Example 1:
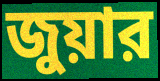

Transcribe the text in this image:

জুয়ার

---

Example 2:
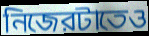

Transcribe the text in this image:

নিজেরটাতেও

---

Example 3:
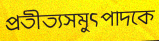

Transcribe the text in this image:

প্রতীত্যসমুৎপাদকে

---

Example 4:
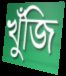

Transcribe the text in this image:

খুঁজি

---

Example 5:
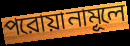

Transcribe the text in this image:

পরোয়ানামূলে